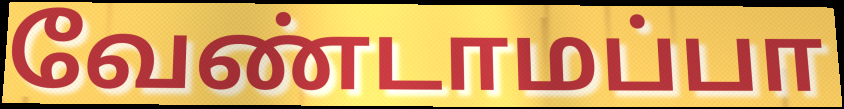
வேண்டாமப்பா